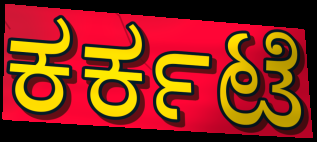
ಕರ್ಕಟೆ